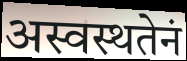
अस्वस्थतेनं